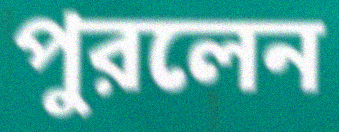
পুরলেন